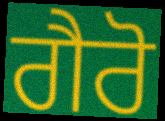
ਗੈਰੋ